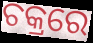
ଚକ୍ରରେ